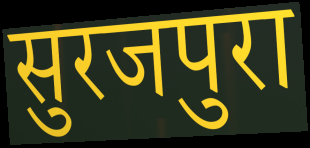
सुरजपुरा